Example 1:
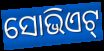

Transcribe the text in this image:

ସୋଭିଏଟ୍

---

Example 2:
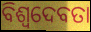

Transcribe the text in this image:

ବିଶ୍ୱଦେବତା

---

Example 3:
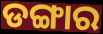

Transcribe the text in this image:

ଡଙ୍ଗାର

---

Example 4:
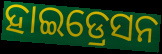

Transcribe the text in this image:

ହାଇଡ୍ରେସନ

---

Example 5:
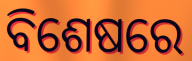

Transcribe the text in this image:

ବିଶେଷରେ